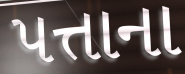
પત્તાના